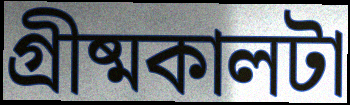
গ্রীষ্মকালটা